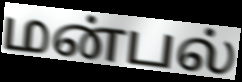
மன்பல்